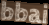
bbai